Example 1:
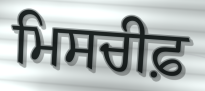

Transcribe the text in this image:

ਮਿਸਚੀਫ਼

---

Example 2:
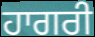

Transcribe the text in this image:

ਹਾਗਰੀ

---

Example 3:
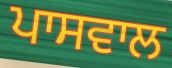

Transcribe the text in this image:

ਪਾਸਵਾਲ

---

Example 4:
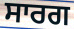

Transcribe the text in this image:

ਸਾਰਗ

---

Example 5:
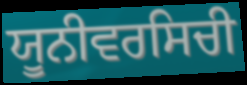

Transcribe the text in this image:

ਯੂਨੀਵਰਸਿਚੀ